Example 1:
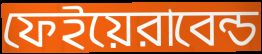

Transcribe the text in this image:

ফেইয়েরাবেন্ড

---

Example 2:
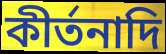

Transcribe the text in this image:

কীর্তনাদি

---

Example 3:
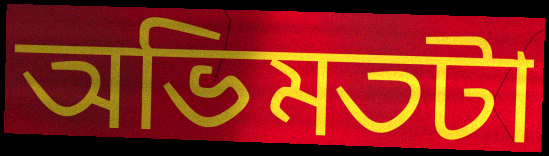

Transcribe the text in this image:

অভিমতটা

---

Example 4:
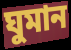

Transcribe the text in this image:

ঘুমান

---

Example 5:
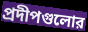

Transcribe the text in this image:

প্রদীপগুলোর